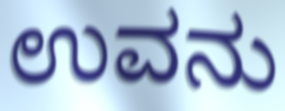
ಉವನು